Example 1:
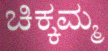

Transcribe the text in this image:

ಚಿಕ್ಕಮ್ಮ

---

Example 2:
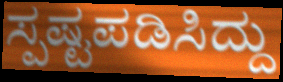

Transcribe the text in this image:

ಸ್ಪಷ್ಟಪಡಿಸಿದ್ದು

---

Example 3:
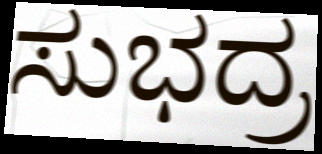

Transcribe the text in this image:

ಸುಭದ್ರ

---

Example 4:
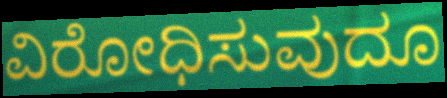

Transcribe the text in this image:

ವಿರೋಧಿಸುವುದೂ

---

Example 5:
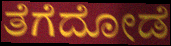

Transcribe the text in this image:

ತೆಗೆದೋಡೆ